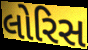
લોરિસ